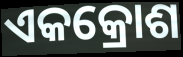
ଏକକ୍ରୋଶ